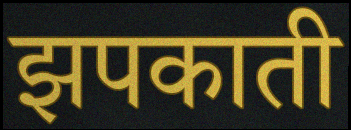
झपकाती